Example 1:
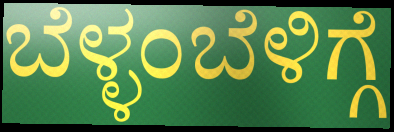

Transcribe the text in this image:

ಬೆಳ್ಳಂಬೆಳಿಗ್ಗೆ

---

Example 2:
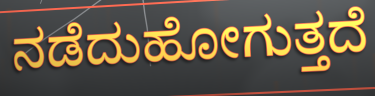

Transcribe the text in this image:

ನಡೆದುಹೋಗುತ್ತದೆ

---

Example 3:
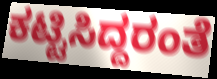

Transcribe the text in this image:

ಕಟ್ಟಿಸಿದ್ದರಂತೆ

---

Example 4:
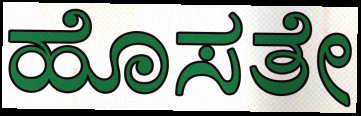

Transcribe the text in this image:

ಹೊಸತೇ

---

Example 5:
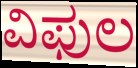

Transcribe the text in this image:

ವಿಫುಲ